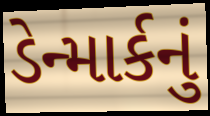
ડેન્માર્કનું